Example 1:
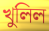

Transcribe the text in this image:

খুলিল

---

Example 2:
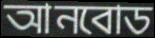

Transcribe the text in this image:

আনবোড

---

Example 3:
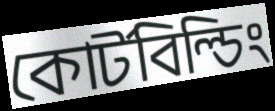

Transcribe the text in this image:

কোর্টবিল্ডিং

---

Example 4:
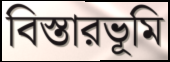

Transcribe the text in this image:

বিস্তারভূমি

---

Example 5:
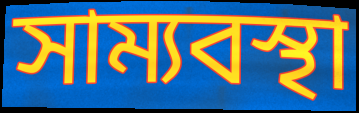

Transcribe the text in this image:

সাম্যবস্থা